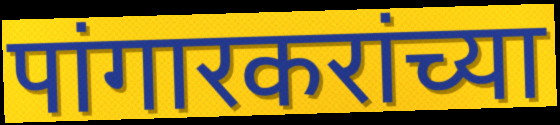
पांगारकरांच्या